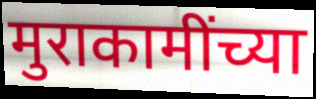
मुराकामींच्या